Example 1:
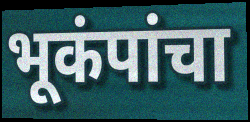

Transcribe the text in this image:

भूकंपांचा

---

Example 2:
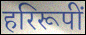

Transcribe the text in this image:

हरिरूपीं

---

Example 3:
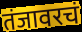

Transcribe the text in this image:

तंजावरचं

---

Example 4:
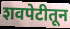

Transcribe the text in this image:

शवपेटीतून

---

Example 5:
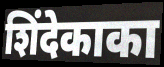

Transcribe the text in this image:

शिंदेकाका